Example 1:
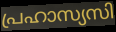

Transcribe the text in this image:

പ്രഹാസ്യസി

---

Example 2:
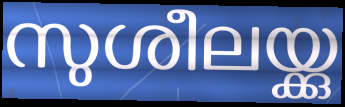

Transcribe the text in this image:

സുശീലയ്ക്കു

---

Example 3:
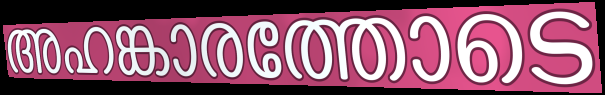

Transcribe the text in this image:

അഹങ്കാരത്തോടെ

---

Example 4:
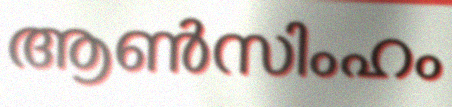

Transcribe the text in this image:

ആൺസിംഹം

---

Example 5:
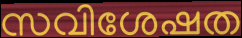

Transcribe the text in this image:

സവിശേഷത